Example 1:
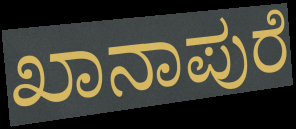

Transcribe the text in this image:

ಖಾನಾಪುರೆ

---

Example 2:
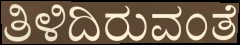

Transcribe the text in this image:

ತಿಳಿದಿರುವಂತೆ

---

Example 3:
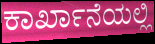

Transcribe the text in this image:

ಕಾರ್ಖಾನೆಯಲ್ಲಿ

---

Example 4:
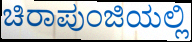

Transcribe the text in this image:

ಚಿರಾಪುಂಜಿಯಲ್ಲಿ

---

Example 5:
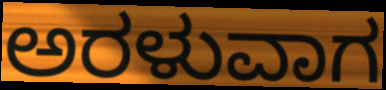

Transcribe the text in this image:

ಅರಳುವಾಗ